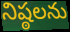
నిష్ఠలను